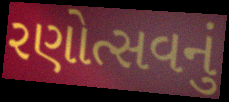
રણોત્સવનું